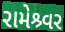
રામેશ્ર્વર